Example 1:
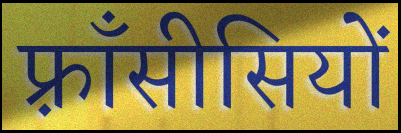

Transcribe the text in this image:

फ़्राँसीसियों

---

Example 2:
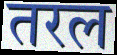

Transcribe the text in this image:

तरल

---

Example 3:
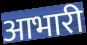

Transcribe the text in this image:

आभारी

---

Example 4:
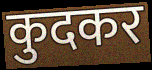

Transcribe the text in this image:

कुदकर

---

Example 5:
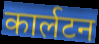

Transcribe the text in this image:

कार्लटन